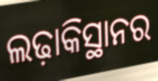
ଲଢ଼ାକିସ୍ଥାନର